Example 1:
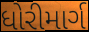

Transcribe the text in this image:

ધોરીમાર્ગ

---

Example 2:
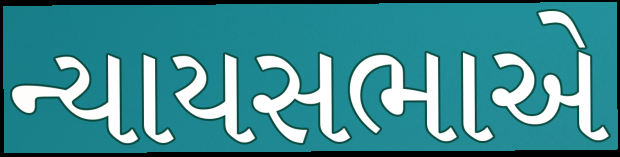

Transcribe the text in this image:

ન્યાયસભાએ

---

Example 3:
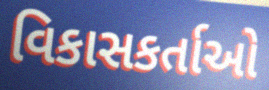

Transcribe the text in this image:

વિકાસકર્તાઓ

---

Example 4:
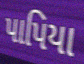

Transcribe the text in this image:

પાપિયા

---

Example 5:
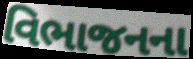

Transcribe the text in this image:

વિભાજનના